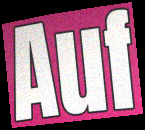
Auf